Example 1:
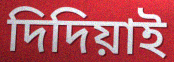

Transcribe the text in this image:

দিদিয়াই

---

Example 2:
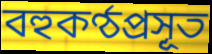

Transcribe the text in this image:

বহুকণ্ঠপ্রসূত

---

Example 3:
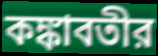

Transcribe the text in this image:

কঙ্কাবতীর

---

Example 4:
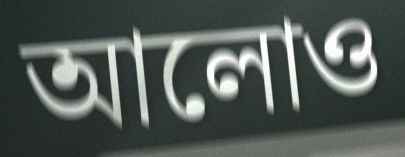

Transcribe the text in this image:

আলোও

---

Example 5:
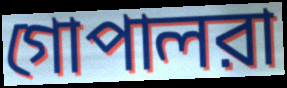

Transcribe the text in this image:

গোপালরা